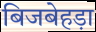
बिजबेहड़ा